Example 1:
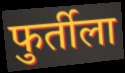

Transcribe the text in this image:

फुर्तीला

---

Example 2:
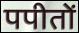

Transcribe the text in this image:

पपीतों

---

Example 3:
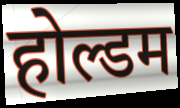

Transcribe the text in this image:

होल्डम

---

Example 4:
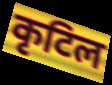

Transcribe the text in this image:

कृटिल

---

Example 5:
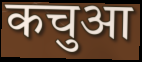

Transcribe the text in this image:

कचुआ